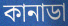
কানাডা